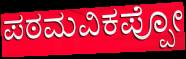
ಪಠಮವಿಕಪ್ಪೋ